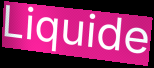
Liquide